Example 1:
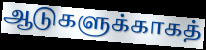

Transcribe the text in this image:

ஆடுகளுக்காகத்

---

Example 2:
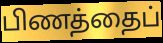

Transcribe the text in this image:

பிணத்தைப்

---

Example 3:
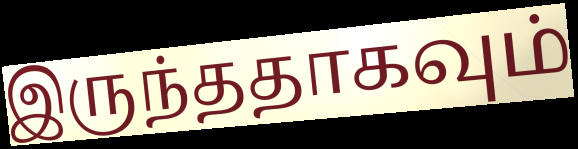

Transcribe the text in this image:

இருந்ததாகவும்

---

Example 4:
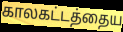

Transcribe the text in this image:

காலகட்டத்தைய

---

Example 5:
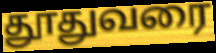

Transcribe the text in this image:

தூதுவரை